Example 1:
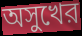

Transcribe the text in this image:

অসুখের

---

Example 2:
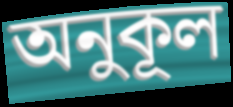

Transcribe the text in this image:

অনুকূল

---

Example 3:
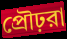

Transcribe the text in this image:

প্রৌঢ়রা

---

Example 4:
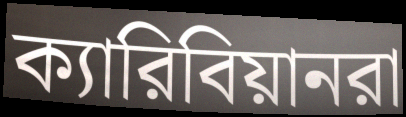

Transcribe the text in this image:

ক্যারিবিয়ানরা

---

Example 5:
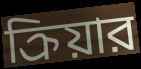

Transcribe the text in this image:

ক্রিয়ার